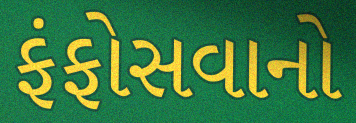
ફંફોસવાનો